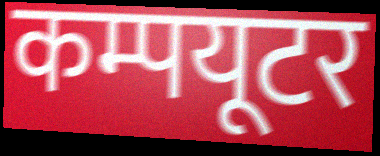
कम्पयूटर